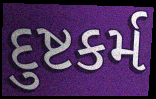
દુષ્ટકર્મ